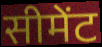
सीमेंट